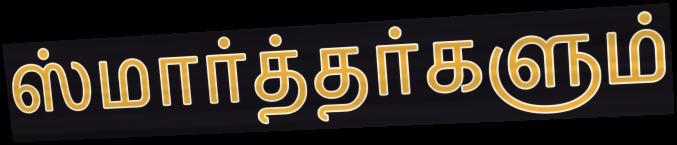
ஸ்மார்த்தர்களும்